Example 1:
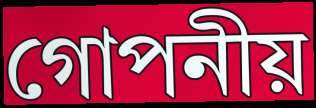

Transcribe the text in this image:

গোপনীয়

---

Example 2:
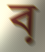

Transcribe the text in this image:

ব়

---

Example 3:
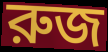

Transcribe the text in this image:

রুজ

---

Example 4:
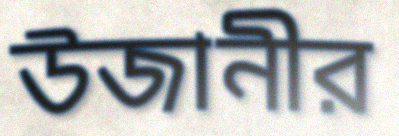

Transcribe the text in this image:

উজানীর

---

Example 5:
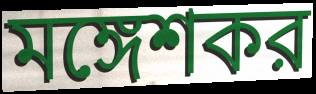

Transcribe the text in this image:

মঙ্গেশকর